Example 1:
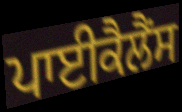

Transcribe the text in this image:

ਪਾਈਕੈਲੈਂਸ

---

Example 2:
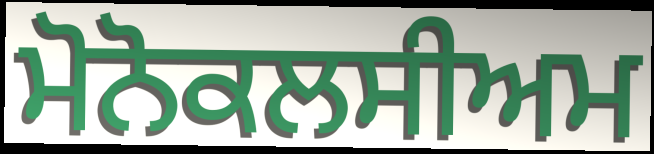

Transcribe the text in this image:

ਮੋਨੋਕਲਸੀਅਮ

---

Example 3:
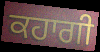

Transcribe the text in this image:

ਕਹਾਗੀ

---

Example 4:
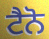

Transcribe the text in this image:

ਟੈਨੋ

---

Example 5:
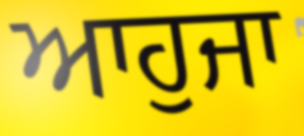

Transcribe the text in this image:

ਆਹੁਜਾ